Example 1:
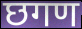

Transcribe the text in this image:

छगण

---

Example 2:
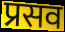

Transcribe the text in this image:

प्रसव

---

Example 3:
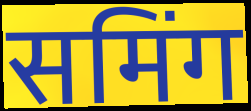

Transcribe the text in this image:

समिंग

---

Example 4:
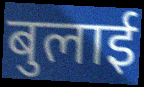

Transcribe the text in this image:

बुलाई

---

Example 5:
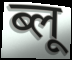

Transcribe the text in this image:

ब्लू